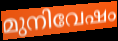
മുനിവേഷം